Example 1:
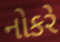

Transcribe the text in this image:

નોકરે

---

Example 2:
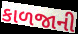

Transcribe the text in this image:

કાળજાની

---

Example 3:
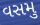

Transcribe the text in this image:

વસમુ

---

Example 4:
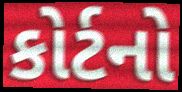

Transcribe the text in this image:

કોર્ટનો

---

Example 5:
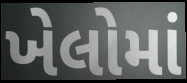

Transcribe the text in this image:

ખેલોમાં